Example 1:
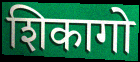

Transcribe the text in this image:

शिकागो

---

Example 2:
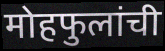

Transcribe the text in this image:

मोहफुलांची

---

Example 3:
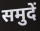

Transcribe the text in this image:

समुदें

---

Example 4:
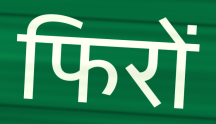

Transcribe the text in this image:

फिरों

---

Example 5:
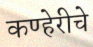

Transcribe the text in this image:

कण्हेरीचे